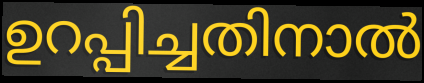
ഉറപ്പിച്ചതിനാൽ